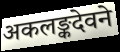
अकलङ्कदेवने